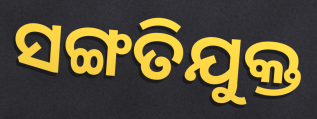
ସଙ୍ଗତିଯୁକ୍ତ